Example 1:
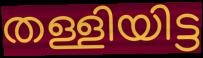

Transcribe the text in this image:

തള്ളിയിട്ട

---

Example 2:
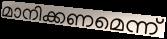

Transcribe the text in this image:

മാനിക്കണമെന്ന്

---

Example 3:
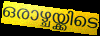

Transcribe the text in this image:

ഒരാഴ്ചയ്ക്കിടെ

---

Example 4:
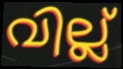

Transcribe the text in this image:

വില്ല്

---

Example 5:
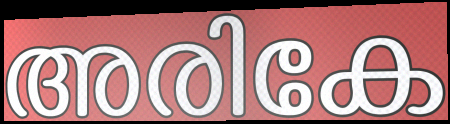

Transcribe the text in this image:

അരികേ